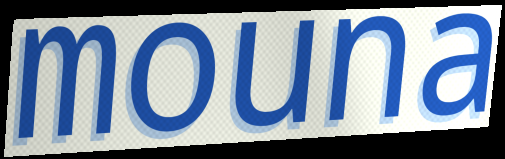
mouna